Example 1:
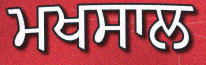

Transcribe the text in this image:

ਮਖਸਾਲ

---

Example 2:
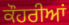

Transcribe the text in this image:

ਕੌਹਰੀਆਂ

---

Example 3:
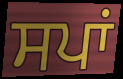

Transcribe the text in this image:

ਸਪਾਂ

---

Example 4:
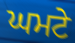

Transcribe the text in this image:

ਘਮਟੇ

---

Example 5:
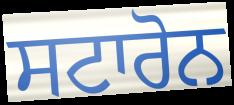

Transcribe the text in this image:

ਸਟਾਰੋਨ